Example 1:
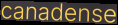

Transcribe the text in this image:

canadense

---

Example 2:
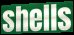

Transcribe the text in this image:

shells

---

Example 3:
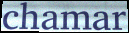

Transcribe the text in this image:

chamar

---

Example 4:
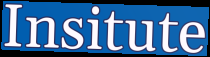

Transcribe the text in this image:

Insitute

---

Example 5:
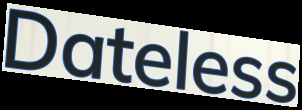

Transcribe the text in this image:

Dateless